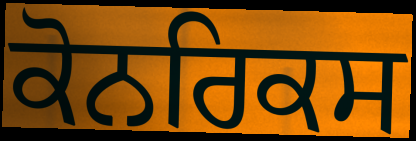
ਕੋਨਰਿਕਸ